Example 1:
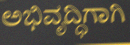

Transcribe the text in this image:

ಅಭಿವೃದ್ಧಿಗಾಗಿ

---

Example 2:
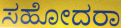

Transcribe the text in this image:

ಸಹೋದರಾ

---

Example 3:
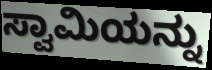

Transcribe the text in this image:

ಸ್ವಾಮಿಯನ್ನು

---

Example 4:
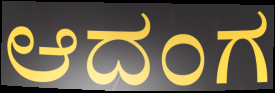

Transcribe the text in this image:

ಆದಂಗ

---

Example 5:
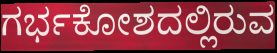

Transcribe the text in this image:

ಗರ್ಭಕೋಶದಲ್ಲಿರುವ